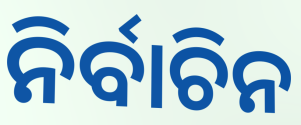
ନିର୍ବାଚିନ